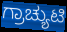
ಗ್ರಾಚ್ಯುಟಿ